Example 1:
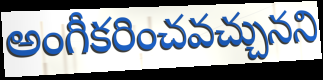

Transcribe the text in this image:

అంగీకరించవచ్చునని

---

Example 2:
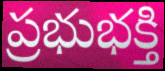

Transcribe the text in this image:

ప్రభుభక్తి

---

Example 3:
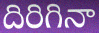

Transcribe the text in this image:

దిరిగినా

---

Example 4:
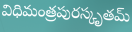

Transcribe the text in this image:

విధిమంత్రపురస్కృతమ్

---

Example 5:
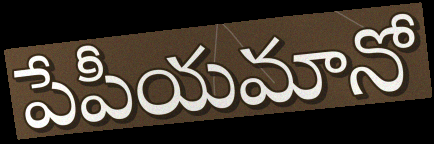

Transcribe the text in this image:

పేపీయమానో